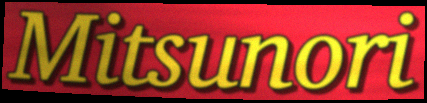
Mitsunori